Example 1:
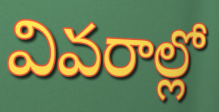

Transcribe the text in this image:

వివరాల్లో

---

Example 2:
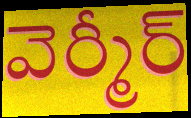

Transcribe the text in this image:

వెర్మీర్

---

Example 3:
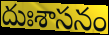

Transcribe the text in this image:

దుఃశాసనం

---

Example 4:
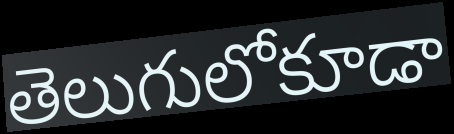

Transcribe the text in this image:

తెలుగులోకూడా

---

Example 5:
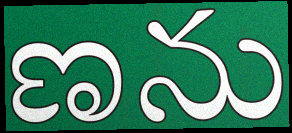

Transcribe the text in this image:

ణను